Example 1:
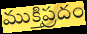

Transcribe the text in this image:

ముక్తిప్రదం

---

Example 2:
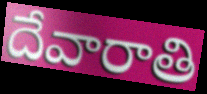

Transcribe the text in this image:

దేవారాతి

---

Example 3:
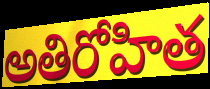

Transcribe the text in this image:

అతిరోహిత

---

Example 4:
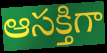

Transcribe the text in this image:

ఆసక్తిగా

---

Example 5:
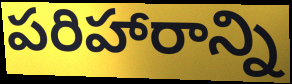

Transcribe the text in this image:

పరిహారాన్ని